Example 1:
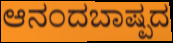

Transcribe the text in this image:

ಆನಂದಬಾಷ್ಪದ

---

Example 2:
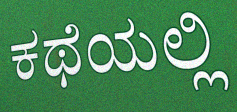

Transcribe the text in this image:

ಕಥೆಯಲ್ಲಿ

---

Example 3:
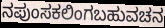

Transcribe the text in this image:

ನಪುಂಸಕಲಿಂಗಬಹುವಚನ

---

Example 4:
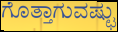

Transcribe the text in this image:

ಗೊತ್ತಾಗುವಷ್ಟು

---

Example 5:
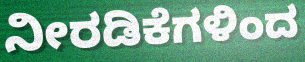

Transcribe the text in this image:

ನೀರಡಿಕೆಗಳಿಂದ